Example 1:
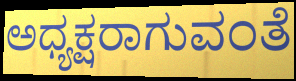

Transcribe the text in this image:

ಅಧ್ಯಕ್ಷರಾಗುವಂತೆ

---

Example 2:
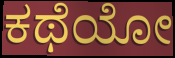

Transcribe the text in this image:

ಕಥೆಯೋ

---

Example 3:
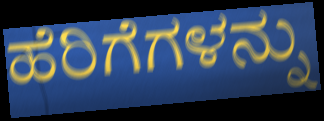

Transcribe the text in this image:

ಹೆರಿಗೆಗಳನ್ನು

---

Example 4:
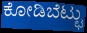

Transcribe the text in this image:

ಕೋಡಿಬೆಟ್ಟು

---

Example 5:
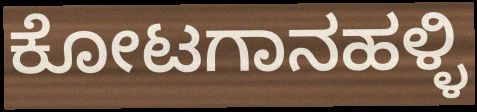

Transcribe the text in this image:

ಕೋಟಗಾನಹಳ್ಳಿ